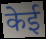
केई